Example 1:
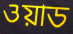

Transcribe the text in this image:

ওয়াড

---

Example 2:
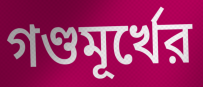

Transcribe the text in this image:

গণ্ডমূর্খের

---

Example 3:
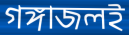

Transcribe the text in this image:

গঙ্গাজলই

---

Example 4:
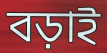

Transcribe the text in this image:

বড়াই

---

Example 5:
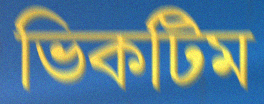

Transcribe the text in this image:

ভিকটিম